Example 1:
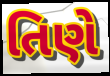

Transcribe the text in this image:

તિણે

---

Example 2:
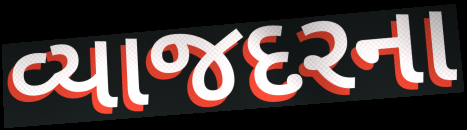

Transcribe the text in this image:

વ્યાજદરના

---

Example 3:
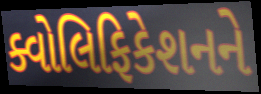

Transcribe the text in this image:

ક્વોલિફિકેશનને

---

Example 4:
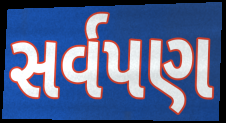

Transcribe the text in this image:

સર્વપણ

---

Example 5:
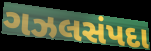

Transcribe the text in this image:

ગઝલસંપદા